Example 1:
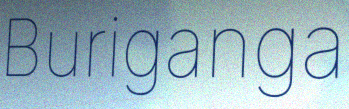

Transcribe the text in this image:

Buriganga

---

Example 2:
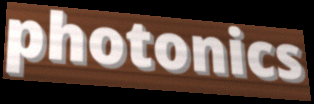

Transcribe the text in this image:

photonics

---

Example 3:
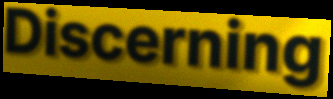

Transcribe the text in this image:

Discerning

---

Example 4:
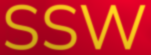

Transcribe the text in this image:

SSW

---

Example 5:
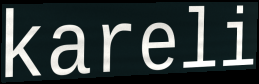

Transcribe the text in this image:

kareli